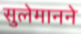
सुलेमानने